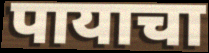
पायाचा